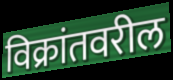
विक्रांतवरील